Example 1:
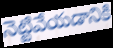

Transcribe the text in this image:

నెట్టివేయడానికి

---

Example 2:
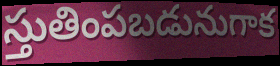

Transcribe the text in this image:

స్తుతింపబడునుగాక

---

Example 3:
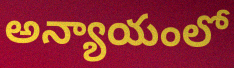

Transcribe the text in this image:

అన్యాయంలో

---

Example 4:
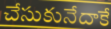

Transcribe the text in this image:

చేసుకునేదాకే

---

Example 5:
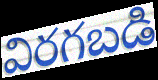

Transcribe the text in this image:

విరగబడి